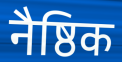
नैष्ठिक